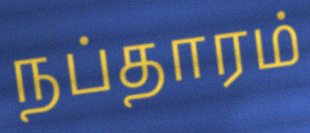
நப்தாரம்